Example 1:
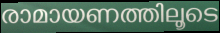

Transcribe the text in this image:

രാമായണത്തിലൂടെ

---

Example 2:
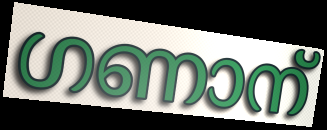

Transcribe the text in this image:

ഗണാന്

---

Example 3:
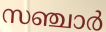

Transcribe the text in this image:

സഞ്ചാർ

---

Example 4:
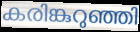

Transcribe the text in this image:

കരിങ്കുറുഞ്ഞി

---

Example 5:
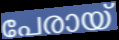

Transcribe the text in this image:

പേരായ്